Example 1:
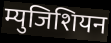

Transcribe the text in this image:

म्‍युजिशियन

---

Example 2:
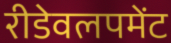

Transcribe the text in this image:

रीडेवलपमेंट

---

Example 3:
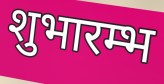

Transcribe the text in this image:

शुभारम्भ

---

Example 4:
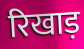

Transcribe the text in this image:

रिखाड़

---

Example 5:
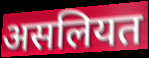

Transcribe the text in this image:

असलियत